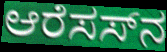
ಆರೆಸಸ್‌ನ